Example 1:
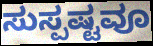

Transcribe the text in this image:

ಸುಸ್ಪಷ್ಟವೂ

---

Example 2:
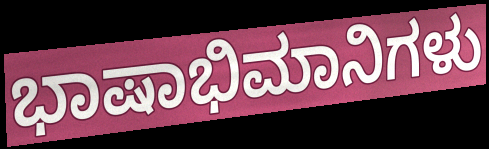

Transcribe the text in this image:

ಭಾಷಾಭಿಮಾನಿಗಳು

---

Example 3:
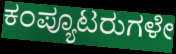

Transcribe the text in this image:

ಕಂಪ್ಯೂಟರುಗಳೇ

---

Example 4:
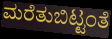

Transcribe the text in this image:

ಮರೆತುಬಿಟ್ಟಂತೆ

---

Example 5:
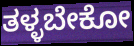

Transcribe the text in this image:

ತಳ್ಳಬೇಕೋ